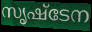
സൃഷ്ടേന